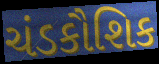
ચંડકૌશિક